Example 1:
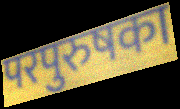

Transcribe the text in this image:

परपुरुषका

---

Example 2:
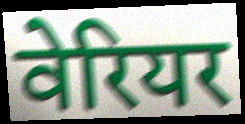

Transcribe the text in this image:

वेरियर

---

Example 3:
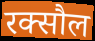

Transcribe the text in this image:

रक्सौल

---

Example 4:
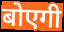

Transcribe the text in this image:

बोएगी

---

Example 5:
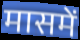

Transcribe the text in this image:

मासमें